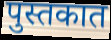
पुस्तकात